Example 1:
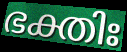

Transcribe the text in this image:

ഭക്തിഃ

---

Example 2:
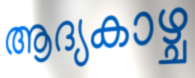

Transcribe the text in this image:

ആദ്യകാഴ്ച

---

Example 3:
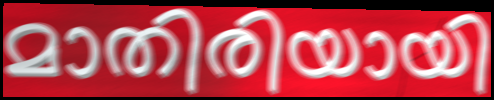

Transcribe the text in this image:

മാതിരിയായി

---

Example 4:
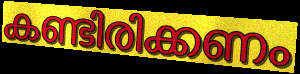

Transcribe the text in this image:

കണ്ടിരിക്കണം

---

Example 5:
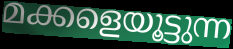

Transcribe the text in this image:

മക്കളെയൂട്ടുന്ന